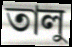
তালু